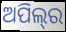
ଅପିଲ୍‍ର